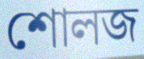
শোলজ